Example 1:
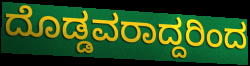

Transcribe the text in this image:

ದೊಡ್ಡವರಾದ್ದರಿಂದ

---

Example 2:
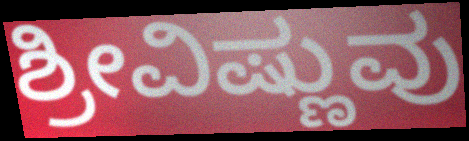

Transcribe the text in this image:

ಶ್ರೀವಿಷ್ಣುವು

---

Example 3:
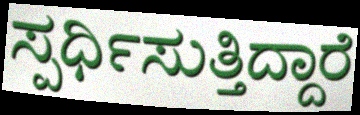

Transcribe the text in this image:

ಸ್ಪರ್ಧಿಸುತ್ತಿದ್ದಾರೆ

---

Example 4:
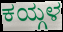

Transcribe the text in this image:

ಕಯ್ಗಳ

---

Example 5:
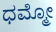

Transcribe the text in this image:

ಧಮ್ಮೋ